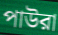
পাউরা